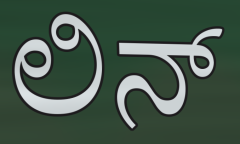
ಲಿನ್